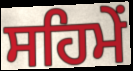
ਸਹਿਮੇਂ